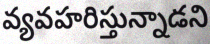
వ్యవహరిస్తున్నాడని